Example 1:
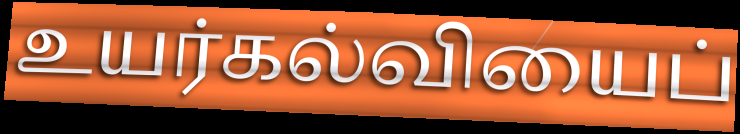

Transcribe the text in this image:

உயர்கல்வியைப்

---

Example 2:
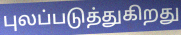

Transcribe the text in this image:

புலப்படுத்துகிறது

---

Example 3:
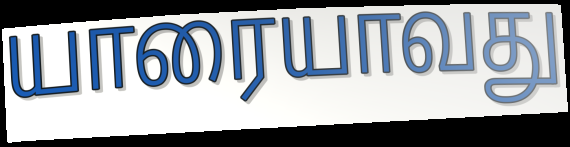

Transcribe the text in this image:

யாரையாவது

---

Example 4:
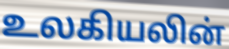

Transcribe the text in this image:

உலகியலின்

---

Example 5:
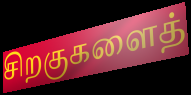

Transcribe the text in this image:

சிறகுகளைத்